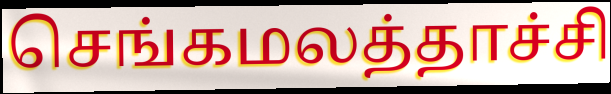
செங்கமலத்தாச்சி